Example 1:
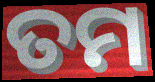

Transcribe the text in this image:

ତମ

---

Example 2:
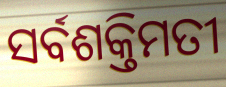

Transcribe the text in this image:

ସର୍ବଶକ୍ତିମତୀ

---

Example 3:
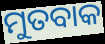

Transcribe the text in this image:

ମୁତବାକ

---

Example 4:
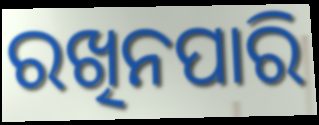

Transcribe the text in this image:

ରଖିନପାରି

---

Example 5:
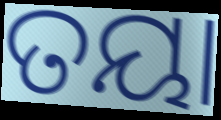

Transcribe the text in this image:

ତୟା